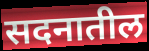
सदनातील